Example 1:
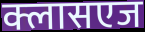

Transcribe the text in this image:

क्लासएज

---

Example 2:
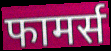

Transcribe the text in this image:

फामर्स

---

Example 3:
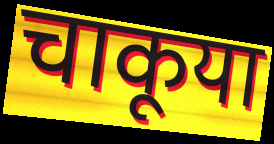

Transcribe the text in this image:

चाकूया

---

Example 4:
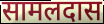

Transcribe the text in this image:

सामलदास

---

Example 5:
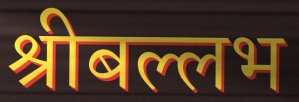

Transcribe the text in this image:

श्रीबल्लभ